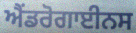
ਐਂਡਰੋਗਾਈਨਸ